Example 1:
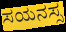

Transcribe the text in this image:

ಸಯನಸ್ಸ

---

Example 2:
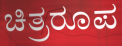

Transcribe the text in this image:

ಚಿತ್ರರೂಪ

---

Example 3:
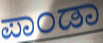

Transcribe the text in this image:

ಪಾಂಡಾ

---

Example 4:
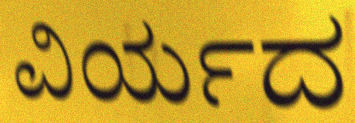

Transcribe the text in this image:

ವಿರ್ಯದ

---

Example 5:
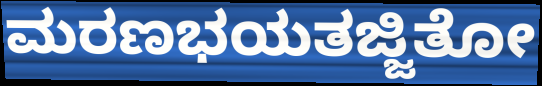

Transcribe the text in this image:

ಮರಣಭಯತಜ್ಜಿತೋ